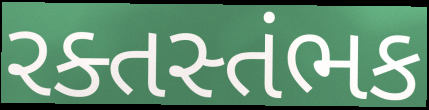
રક્તસ્તંભક